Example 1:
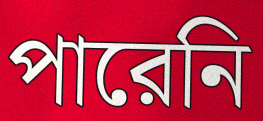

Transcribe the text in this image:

পারেনি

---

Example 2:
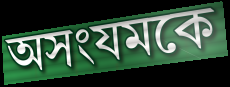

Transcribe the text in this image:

অসংযমকে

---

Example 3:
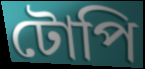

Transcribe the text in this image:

টোপি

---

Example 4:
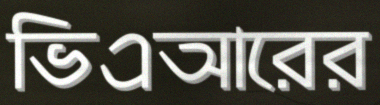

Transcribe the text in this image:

ভিএআরের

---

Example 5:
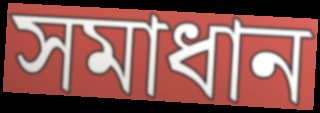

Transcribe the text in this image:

সমাধান